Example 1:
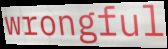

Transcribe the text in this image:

wrongful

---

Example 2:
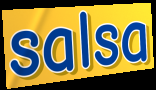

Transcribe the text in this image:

salsa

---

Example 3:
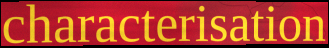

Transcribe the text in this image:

characterisation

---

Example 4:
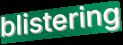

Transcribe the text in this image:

blistering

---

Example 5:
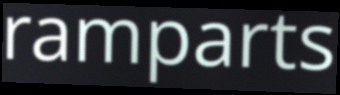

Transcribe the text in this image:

ramparts